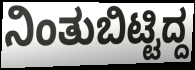
ನಿಂತುಬಿಟ್ಟಿದ್ದ